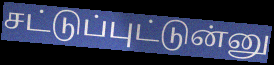
சட்டுப்புட்டுன்னு